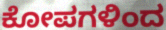
ಕೋಪಗಳಿಂದ